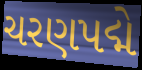
ચરણપદ્મે